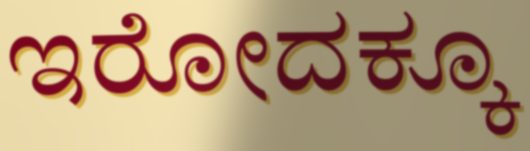
ಇರೋದಕ್ಕೂ